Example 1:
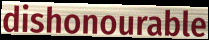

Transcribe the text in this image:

dishonourable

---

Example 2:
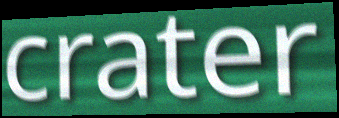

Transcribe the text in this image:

crater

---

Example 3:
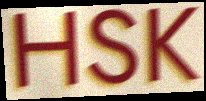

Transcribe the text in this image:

HSK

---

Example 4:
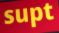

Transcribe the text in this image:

supt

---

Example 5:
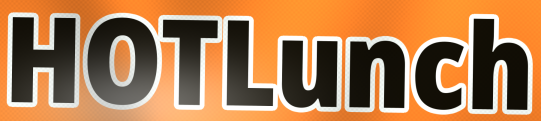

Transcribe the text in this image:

HOTLunch